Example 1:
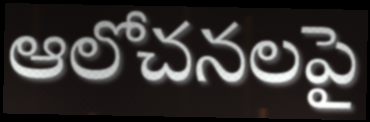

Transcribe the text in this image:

ఆలోచనలపై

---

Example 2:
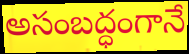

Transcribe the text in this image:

అసంబద్ధంగానే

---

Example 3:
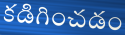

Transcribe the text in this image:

కడిగించడం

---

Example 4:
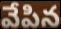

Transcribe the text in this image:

వేపిన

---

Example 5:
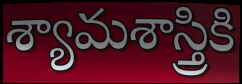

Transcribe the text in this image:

శ్యామశాస్త్రికి